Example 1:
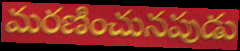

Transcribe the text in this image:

మరణించునపుడు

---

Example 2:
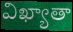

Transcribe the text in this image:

విఖ్యాతా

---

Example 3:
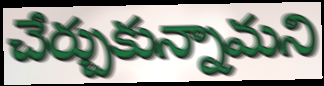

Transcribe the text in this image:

చేర్చుకున్నామని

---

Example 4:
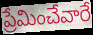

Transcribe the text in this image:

ప్రేమించేవారే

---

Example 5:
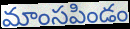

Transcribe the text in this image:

మాంసపిండం